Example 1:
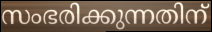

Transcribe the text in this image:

സംഭരിക്കുന്നതിന്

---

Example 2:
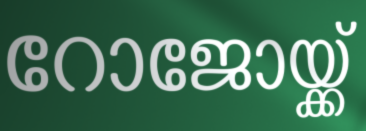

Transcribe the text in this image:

റോജോയ്ക്ക്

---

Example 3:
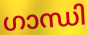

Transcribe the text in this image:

ഗാന്ധി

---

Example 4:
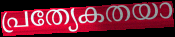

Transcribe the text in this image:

പ്രത്യേകതയാ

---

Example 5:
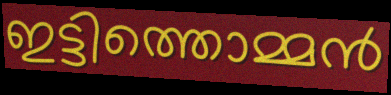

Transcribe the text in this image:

ഇട്ടിത്തൊമ്മൻ